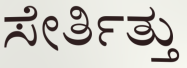
ಸೇರ್ತಿತ್ತು